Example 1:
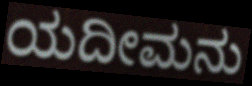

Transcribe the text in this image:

ಯದೀಮನು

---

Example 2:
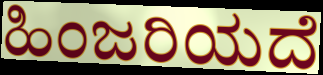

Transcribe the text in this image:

ಹಿಂಜರಿಯದೆ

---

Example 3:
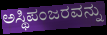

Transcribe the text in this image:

ಅಸ್ಥಿಪಂಜರವನ್ನು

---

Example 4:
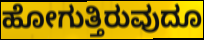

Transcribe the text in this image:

ಹೋಗುತ್ತಿರುವುದೂ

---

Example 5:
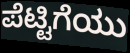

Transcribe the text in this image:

ಪೆಟ್ಟಿಗೆಯು